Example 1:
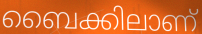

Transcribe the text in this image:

ബൈക്കിലാണ്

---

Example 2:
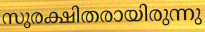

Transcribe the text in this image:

സുരക്ഷിതരായിരുന്നു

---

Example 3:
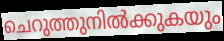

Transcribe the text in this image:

ചെറുത്തുനിൽക്കുകയും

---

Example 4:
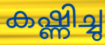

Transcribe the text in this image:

കഷ്ണിച്ചു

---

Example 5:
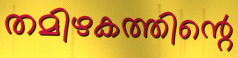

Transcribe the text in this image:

തമിഴകത്തിന്റെ